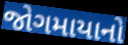
જોગમાયાનો